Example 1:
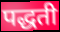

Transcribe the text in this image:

पद्धती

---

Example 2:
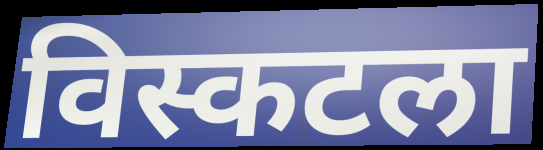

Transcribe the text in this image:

विस्कटला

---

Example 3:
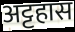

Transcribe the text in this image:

अट्टहास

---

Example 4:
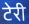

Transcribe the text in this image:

टेरी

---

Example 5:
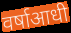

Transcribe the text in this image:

वर्षाआधी